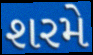
શરમે